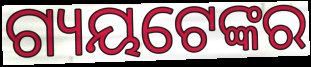
ଗ୍ୟୟଟେଙ୍କର